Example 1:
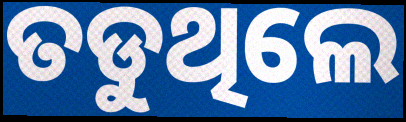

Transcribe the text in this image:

ତଡୁଥିଲେ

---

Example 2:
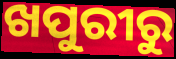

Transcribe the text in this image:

ଖପୁରୀରୁ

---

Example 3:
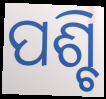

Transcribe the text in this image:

ପଶ୍ଚି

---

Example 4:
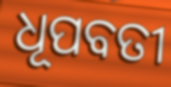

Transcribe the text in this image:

ଧୂପବତୀ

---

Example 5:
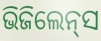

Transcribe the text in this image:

ଭିଜିଲେନ୍‌ସ